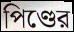
পিণ্ডের